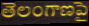
తెలంగాణపై